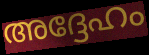
അദ്ദേഹം